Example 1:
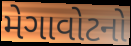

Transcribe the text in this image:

મેગાવોટનો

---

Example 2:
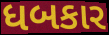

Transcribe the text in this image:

ધબકાર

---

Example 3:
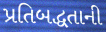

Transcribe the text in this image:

પ્રતિબદ્ધતાની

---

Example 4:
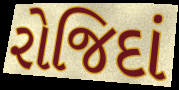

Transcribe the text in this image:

રોજિદાં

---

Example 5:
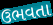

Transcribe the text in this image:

ઉભવતા